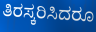
ತಿರಸ್ಕರಿಸಿದರೂ